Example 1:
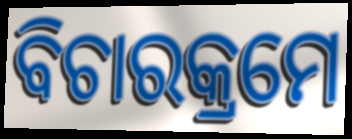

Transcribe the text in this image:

ବିଚାରକ୍ରମେ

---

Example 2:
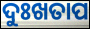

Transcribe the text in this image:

ଦୁଃଖତାପ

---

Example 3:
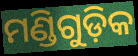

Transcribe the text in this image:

ମଣ୍ଡିଗୁଡ଼ିକ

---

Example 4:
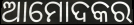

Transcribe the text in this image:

ଆମୋଦକର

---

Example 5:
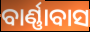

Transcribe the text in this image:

ବାର୍ଣ୍ଣାବାସ